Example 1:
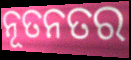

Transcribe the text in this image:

ନୂତନତର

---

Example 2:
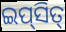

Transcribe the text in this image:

ଇପ୍‌ସିତ୍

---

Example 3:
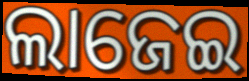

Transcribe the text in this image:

ଲାଜେଇ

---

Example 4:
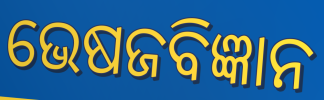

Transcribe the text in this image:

ଭେଷଜବିଜ୍ଞାନ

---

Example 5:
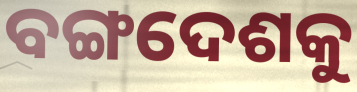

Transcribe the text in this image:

ବଙ୍ଗଦେଶକୁ